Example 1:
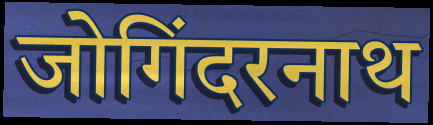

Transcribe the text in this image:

जोगिंदरनाथ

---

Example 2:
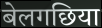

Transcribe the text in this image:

बेलगछिया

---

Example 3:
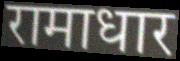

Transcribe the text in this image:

रामाधार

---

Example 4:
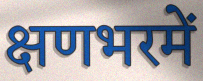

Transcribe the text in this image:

क्षणभरमें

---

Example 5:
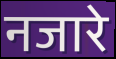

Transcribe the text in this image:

नजारे